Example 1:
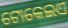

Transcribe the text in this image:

ଟୋକେଇଏ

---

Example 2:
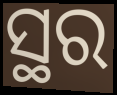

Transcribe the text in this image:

ସ୍ଥର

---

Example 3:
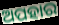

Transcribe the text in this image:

ଅପହାର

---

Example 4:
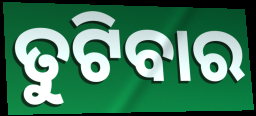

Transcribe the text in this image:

ତୁଟିବାର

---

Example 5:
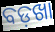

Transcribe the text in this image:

ବଡ଼ଖା